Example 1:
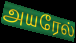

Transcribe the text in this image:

அயரேல்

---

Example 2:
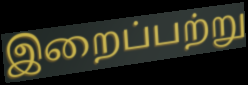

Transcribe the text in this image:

இறைப்பற்று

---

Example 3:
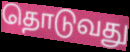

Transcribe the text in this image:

தொடுவது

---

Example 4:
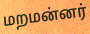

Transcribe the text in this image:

மறமன்னர்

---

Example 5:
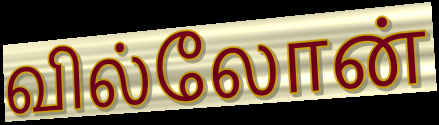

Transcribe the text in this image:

வில்லோன்